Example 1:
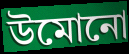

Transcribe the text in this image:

উমোনো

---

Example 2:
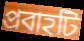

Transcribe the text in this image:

প্রবাহটি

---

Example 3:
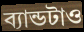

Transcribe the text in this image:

ব্যান্ডটাও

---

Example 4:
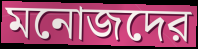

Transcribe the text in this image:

মনোজদের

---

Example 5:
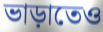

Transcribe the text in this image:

ভাড়াতেও